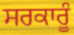
ਸਰਕਾਰੂੰ